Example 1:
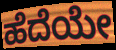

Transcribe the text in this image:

ಹೆದೆಯೇ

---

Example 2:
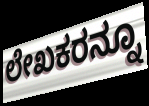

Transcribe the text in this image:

ಲೇಖಕರನ್ನೂ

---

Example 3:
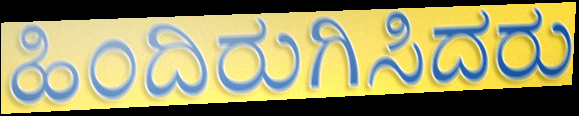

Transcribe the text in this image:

ಹಿಂದಿರುಗಿಸಿದರು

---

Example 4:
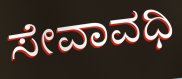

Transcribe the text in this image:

ಸೇವಾವಧಿ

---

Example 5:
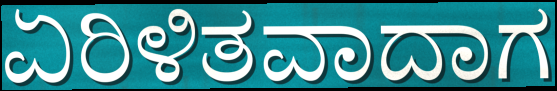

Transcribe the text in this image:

ಏರಿಳಿತವಾದಾಗ